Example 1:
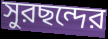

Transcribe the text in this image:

সুরছন্দের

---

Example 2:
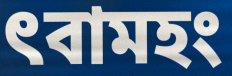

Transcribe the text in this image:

ৎবামহং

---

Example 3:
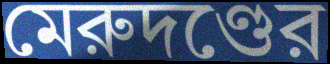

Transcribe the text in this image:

মেরুদণ্ডের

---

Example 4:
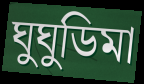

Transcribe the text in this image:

ঘুঘুডিমা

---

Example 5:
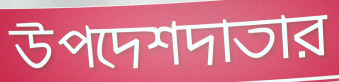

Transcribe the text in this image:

উপদেশদাতার